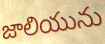
జాలియును